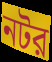
নটর